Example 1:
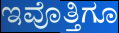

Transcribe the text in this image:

ಇವೊತ್ತಿಗೂ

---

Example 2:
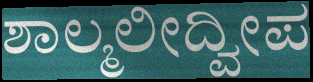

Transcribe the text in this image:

ಶಾಲ್ಮಲೀದ್ವೀಪ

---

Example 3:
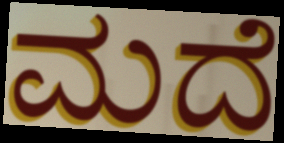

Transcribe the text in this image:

ಮದೆ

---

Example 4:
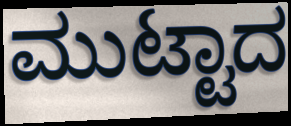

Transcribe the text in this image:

ಮುಟ್ಟಾದ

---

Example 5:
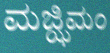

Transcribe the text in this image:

ಮಜ್ಝಿಮಂ